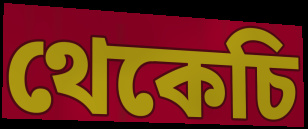
থেকেচি